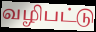
வழிபட்டு